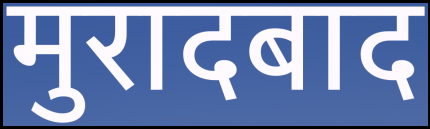
मुरादबाद